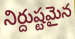
నిర్దుష్టమైన